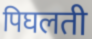
पिघलती